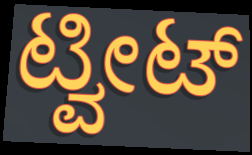
ಟ್ವೀಟ್